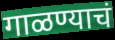
गाळण्याचं